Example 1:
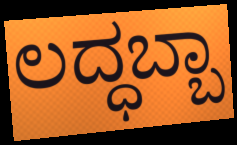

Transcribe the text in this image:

ಲದ್ಧಬ್ಬಾ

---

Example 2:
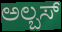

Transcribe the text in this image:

ಅಲ್ಬಸ್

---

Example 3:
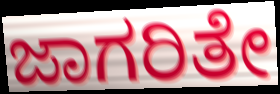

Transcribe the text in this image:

ಜಾಗರಿತೇ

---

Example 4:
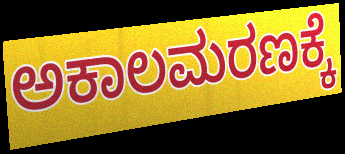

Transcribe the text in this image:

ಅಕಾಲಮರಣಕ್ಕೆ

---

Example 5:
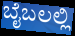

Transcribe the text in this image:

ಬೈಬಲಲ್ಲಿ